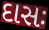
દાસઃ